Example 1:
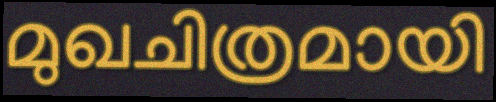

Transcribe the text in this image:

മുഖചിത്രമായി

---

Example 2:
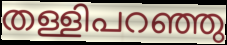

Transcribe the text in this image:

തള്ളിപറഞ്ഞു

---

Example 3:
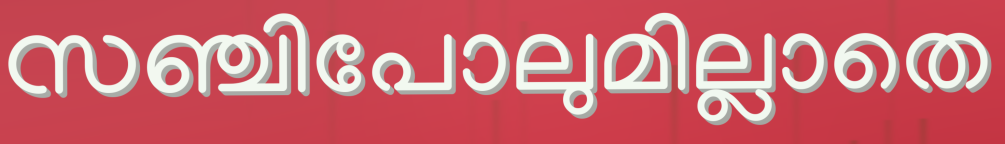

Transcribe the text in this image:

സഞ്ചിപോലുമില്ലാതെ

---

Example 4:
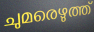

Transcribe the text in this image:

ചുമരെഴുത്ത്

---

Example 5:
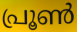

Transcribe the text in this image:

പ്രൂൺ